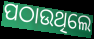
ପଠାଉଥିଲେ